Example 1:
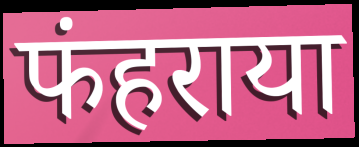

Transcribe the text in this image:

फंहराया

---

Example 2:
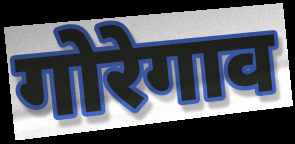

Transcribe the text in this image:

गोरेगाव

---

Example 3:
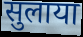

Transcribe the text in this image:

सुलाया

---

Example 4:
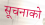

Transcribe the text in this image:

सूचनाको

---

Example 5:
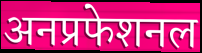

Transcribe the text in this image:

अनप्रफेशनल